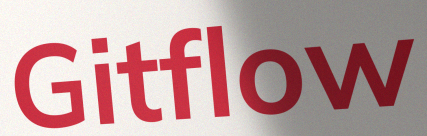
Gitflow